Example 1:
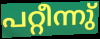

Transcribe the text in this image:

പറ്റീന്നു്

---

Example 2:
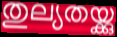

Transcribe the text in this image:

തുല്യതയ്ക്കു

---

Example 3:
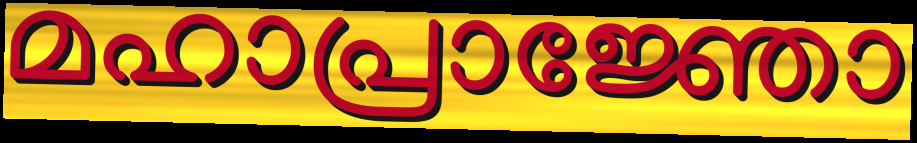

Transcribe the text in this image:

മഹാപ്രാജ്ഞോ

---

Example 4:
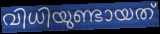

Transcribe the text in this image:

വിധിയുണ്ടായത്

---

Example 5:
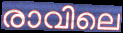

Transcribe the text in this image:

രാവിലെ